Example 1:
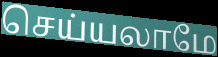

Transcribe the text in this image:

செய்யலாமே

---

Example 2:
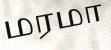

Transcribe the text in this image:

மரமா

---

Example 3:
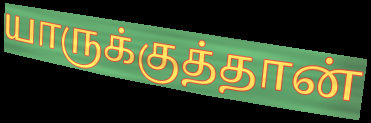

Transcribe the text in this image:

யாருக்குத்தான்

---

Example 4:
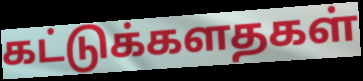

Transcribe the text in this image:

கட்டுக்களதகள்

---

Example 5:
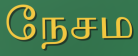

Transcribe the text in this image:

நேசம